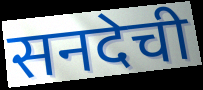
सनदेची